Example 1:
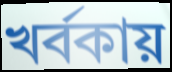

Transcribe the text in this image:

খর্বকায়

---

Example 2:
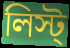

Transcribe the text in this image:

লিস্ট্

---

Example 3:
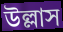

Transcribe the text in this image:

উল্লাস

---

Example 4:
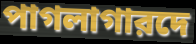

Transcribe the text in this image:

পাগলাগারদে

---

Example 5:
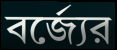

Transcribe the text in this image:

বর্জ্যের